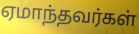
ஏமாந்தவர்கள்